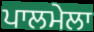
ਪਾਲਮੇਲਾ